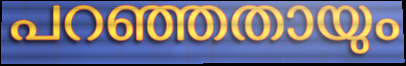
പറഞ്ഞതായും